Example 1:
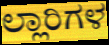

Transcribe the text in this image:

ಲ್ಲಾರಿಗಳ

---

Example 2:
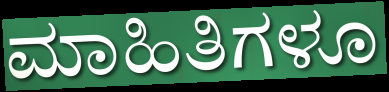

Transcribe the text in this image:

ಮಾಹಿತಿಗಳೂ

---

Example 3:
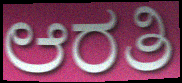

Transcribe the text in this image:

ಆರತಿ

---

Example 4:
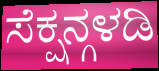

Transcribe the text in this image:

ಸೆಕ್ಷನ್ಗಳಡಿ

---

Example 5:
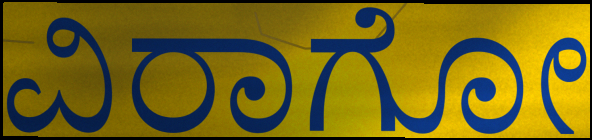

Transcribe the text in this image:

ವಿರಾಗೋ